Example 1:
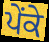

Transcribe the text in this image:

ਪੇਂਕੇ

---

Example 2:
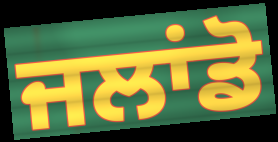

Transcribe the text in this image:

ਜਲਾਂਡੋ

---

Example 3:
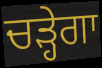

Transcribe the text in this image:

ਚੜ੍ਹੇਗਾ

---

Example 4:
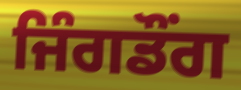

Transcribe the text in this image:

ਜਿੰਗਡੌਂਗ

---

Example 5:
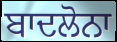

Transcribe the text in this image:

ਬਾਦਲੋਨਾ